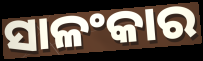
ସାଳଂକାର